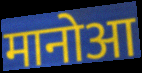
मानोआ